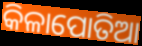
କିଳାପୋତିଆ